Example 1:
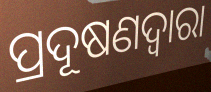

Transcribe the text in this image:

ପ୍ରଦୂଷଣଦ୍ବାରା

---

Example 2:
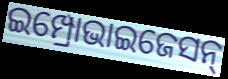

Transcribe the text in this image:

ଇମ୍ପ୍ରୋଭାଇଜେସନ୍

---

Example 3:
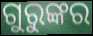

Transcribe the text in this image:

ଗୁରୁଙ୍କର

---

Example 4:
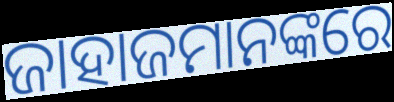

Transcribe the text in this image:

ଜାହାଜମାନଙ୍କରେ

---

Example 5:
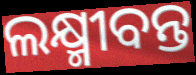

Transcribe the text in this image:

ଲକ୍ଷ୍ମୀବନ୍ତ